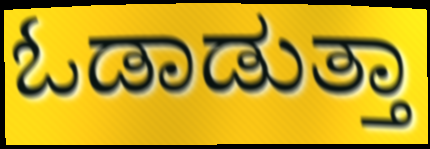
ಓಡಾಡುತ್ತಾ